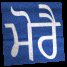
ਮੋਰੈ